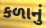
કળાનું